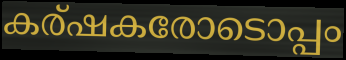
കര്ഷകരോടൊപ്പം